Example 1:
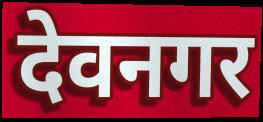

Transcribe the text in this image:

देवनगर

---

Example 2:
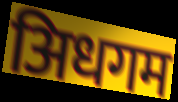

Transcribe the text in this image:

अिधगम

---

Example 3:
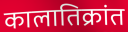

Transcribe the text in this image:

कालातिक्रांत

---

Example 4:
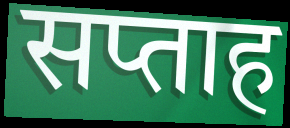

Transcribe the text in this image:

सप्‍ताह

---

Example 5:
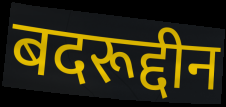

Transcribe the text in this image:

बदरूद्दीन